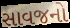
સાવજનો